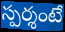
స్పర్శంటే